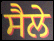
ਸੈਲੇ